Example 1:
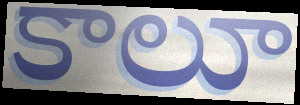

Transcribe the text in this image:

కాలూ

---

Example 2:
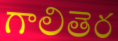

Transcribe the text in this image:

గాలితెర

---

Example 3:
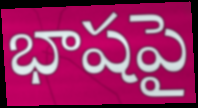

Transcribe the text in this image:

భాషపై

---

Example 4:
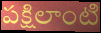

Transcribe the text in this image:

పక్షిలాంటి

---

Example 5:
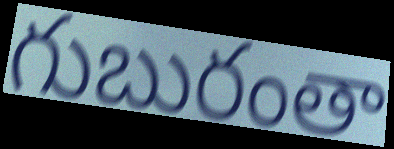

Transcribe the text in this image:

గుబురంతా